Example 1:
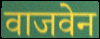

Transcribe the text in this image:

वाजवेन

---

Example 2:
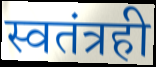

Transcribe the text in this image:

स्वतंत्रही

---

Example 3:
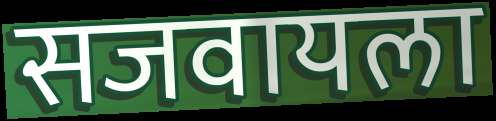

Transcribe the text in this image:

सजवायला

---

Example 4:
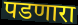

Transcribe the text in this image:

पडणारा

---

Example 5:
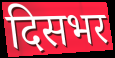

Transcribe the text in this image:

दिसभर